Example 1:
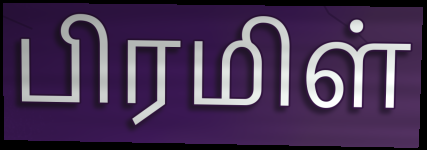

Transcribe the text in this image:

பிரமிள்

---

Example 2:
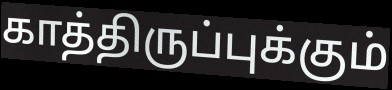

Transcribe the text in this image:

காத்திருப்புக்கும்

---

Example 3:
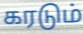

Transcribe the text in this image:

கரடும்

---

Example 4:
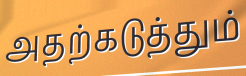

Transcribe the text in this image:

அதற்கடுத்தும்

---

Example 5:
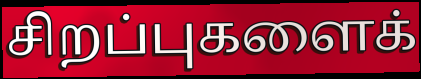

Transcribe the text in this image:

சிறப்புகளைக்